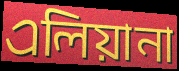
এলিয়ানা